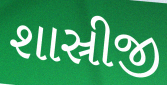
શાસ્રીજી